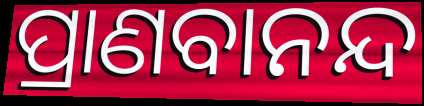
ପ୍ରାଣବାନନ୍ଦ